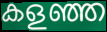
കളഞ്ഞ